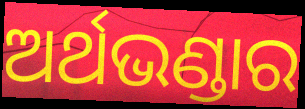
ଅର୍ଥଭଣ୍ଡାର